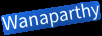
Wanaparthy